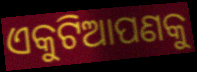
ଏକୁଟିଆପଣକୁ